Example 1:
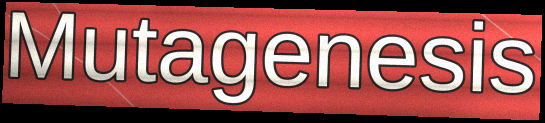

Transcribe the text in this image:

Mutagenesis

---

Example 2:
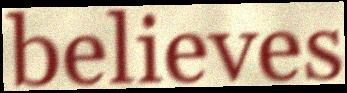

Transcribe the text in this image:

believes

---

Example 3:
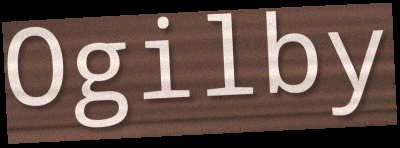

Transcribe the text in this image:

Ogilby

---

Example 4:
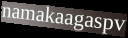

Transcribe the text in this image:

namakaagaspv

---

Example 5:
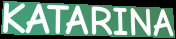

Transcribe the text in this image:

KATARINA